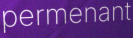
permenant